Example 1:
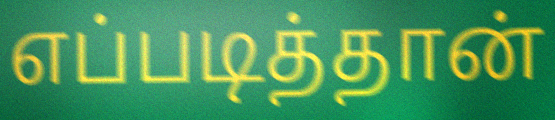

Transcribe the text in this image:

எப்படித்தான்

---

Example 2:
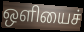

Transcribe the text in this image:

ஒளியைச்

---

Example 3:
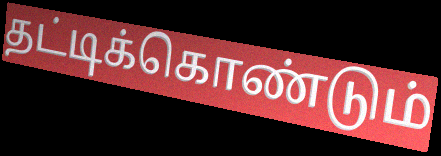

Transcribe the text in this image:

தட்டிக்கொண்டும்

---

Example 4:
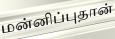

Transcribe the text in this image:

மன்னிப்புதான்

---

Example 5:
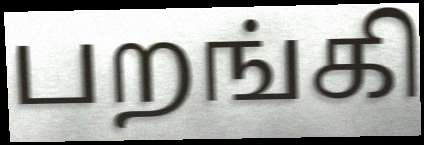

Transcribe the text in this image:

பறங்கி